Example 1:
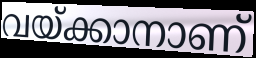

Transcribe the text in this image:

വയ്ക്കാനാണ്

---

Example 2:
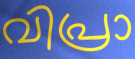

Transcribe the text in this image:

വിപ്രാ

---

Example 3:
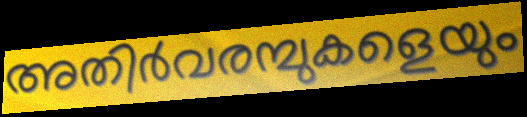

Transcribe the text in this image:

അതിർവരമ്പുകളെയും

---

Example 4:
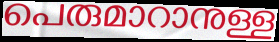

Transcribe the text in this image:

പെരുമാറാനുള്ള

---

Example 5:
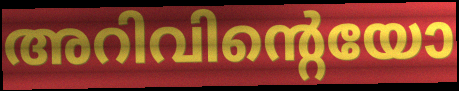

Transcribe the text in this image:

അറിവിന്റെയോ